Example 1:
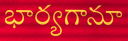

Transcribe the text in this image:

భార్యగానూ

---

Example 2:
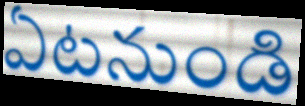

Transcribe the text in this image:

ఏటనుండి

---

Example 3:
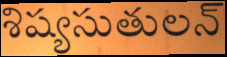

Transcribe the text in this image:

శిష్యసుతులన్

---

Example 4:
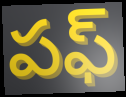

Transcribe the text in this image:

పఫ్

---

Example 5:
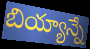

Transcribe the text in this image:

బియ్యాన్నే